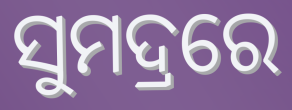
ସୁମଦ୍ରରେ